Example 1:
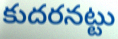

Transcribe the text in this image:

కుదరనట్టు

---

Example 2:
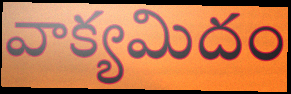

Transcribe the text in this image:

వాక్యమిదం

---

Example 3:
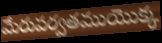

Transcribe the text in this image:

మేరుపర్వతముయొక్క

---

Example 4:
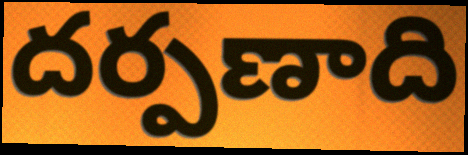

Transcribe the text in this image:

దర్పణాది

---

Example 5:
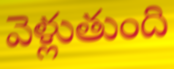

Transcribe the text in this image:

వెళ్లుతుంది